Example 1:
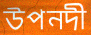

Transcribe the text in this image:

উপনদী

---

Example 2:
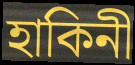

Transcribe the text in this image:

হাকিনী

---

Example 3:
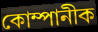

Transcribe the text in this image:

কোম্পানীক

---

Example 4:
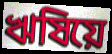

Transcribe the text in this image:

ঋষিয়ে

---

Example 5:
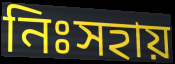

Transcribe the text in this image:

নিঃসহায়